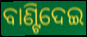
ବାଣ୍ଟିଦେଇ